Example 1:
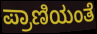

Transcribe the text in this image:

ಪ್ರಾಣಿಯಂತೆ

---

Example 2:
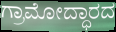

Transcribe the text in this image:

ಗ್ರಾಮೋದ್ಧಾರದ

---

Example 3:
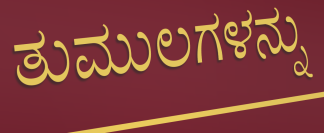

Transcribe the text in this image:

ತುಮುಲಗಳನ್ನು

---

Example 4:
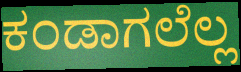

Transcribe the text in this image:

ಕಂಡಾಗಲೆಲ್ಲ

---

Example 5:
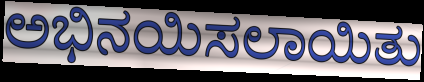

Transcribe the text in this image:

ಅಭಿನಯಿಸಲಾಯಿತು